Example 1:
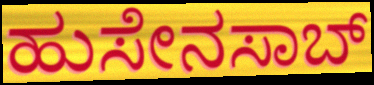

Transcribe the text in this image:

ಹುಸೇನಸಾಬ್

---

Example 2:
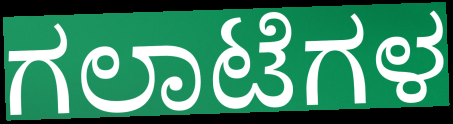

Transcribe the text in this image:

ಗಲಾಟೆಗಳ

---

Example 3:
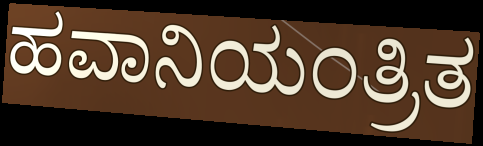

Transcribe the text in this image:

ಹವಾನಿಯಂತ್ರಿತ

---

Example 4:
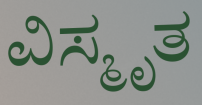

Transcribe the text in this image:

ವಿಸ್ಮೃತ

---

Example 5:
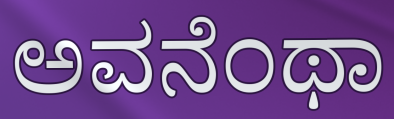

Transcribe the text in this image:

ಅವನೆಂಥಾ